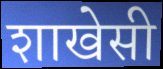
शाखेसी